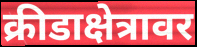
क्रीडाक्षेत्रावर